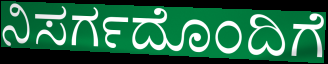
ನಿಸರ್ಗದೊಂದಿಗೆ